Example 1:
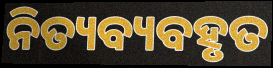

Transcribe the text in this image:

ନିତ୍ୟବ୍ୟବହୃତ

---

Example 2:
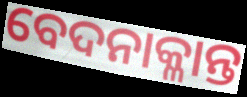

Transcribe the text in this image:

ବେଦନାକ୍ଳାନ୍ତ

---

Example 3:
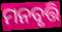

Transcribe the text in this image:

ମନବୃତ୍ତି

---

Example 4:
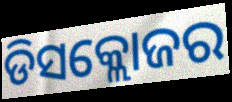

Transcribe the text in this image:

ଡିସକ୍ଲୋଜର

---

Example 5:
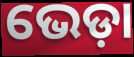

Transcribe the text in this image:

ଭେଡ଼ା